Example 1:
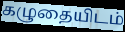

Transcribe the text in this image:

கழுதையிடம்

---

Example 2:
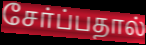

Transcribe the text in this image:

சேர்ப்பதால்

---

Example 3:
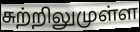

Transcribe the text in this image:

சுற்றிலுமுள்ள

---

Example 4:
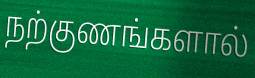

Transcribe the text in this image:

நற்குணங்களால்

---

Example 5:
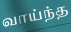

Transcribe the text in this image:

வாய்ந்த